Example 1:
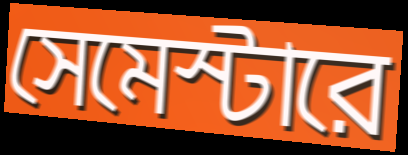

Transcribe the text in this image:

সেমেস্টারে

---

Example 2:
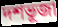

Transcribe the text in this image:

দশভূজা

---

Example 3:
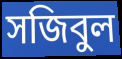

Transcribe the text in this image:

সজিবুল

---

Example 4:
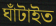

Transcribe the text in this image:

ঘাঁটাইত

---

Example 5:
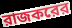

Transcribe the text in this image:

রাজকরের